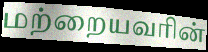
மற்றையவரின்